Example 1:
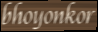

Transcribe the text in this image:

bhoyonkor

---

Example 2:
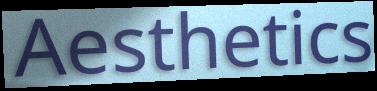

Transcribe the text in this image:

Aesthetics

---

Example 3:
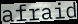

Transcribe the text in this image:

afraid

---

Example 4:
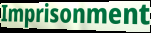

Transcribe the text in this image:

Imprisonment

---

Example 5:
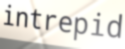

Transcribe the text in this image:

intrepid